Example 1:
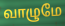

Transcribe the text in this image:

வாழுமே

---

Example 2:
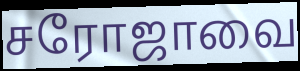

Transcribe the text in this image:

சரோஜாவை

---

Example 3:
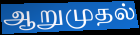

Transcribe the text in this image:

ஆறுமுதல்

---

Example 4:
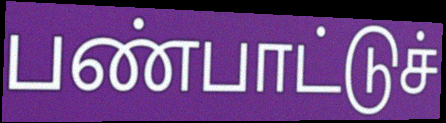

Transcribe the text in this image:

பண்பாட்டுச்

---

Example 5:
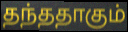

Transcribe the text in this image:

தந்ததாகும்